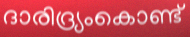
ദാരിദ്ര്യംകൊണ്ട്